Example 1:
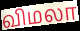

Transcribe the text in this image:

விமலா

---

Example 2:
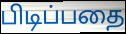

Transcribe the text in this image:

பிடிப்பதை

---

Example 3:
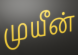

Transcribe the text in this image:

முயீன்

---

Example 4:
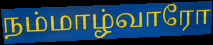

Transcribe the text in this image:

நம்மாழ்வாரோ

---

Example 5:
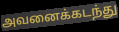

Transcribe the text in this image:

அவனைக்கடந்து